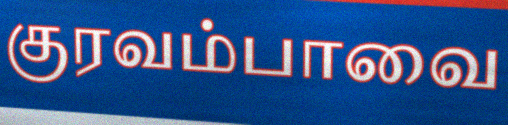
குரவம்பாவை